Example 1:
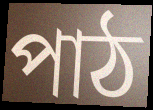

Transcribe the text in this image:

পাঠ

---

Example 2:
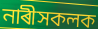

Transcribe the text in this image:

নাৰীসকলক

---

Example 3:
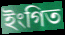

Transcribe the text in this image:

ইংগিত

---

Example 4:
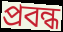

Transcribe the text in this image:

প্ৰবন্ধ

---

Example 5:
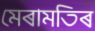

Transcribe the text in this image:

মেৰামতিৰ